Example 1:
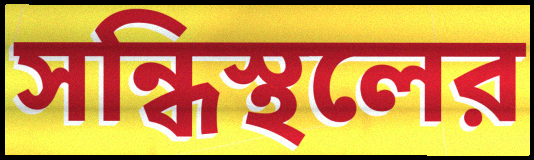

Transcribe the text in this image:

সন্ধিস্থলের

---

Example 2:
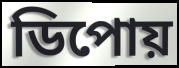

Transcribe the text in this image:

ডিপোয়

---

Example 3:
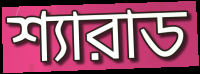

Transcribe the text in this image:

শ্যারাড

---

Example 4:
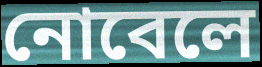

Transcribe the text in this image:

নোবেলে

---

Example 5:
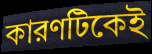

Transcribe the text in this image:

কারণটিকেই